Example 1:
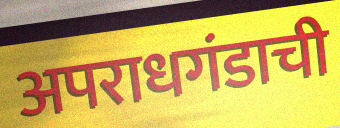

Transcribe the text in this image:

अपराधगंडाची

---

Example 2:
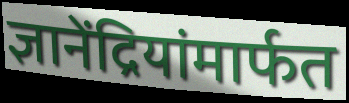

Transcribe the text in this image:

ज्ञानेंद्रियांमार्फत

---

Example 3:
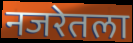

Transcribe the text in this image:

नजरेतला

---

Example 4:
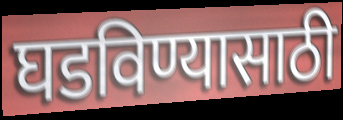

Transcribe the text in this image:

घडविण्यासाठी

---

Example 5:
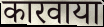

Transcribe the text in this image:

कारवाया